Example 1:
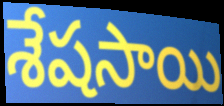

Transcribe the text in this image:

శేషసాయి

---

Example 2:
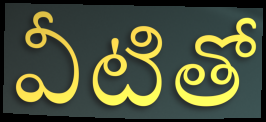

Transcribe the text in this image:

వీటితో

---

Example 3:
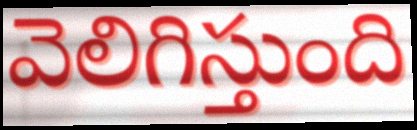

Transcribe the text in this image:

వెలిగిస్తుంది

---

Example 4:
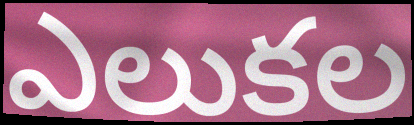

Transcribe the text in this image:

ఎలుకల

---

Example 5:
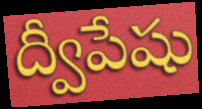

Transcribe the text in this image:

ద్వీపేషు